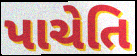
પાચેતિ